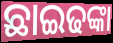
ଛାଇଢଙ୍କା